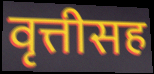
वृत्तीसह